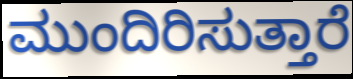
ಮುಂದಿರಿಸುತ್ತಾರೆ